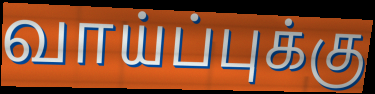
வாய்ப்புக்கு